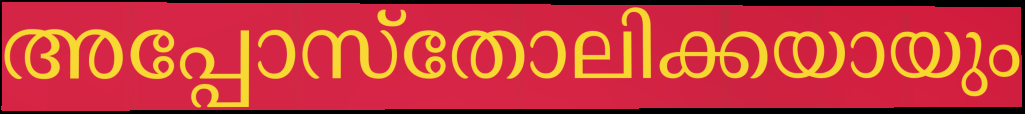
അപ്പോസ്തോലിക്കയായും